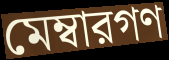
মেম্বারগণ